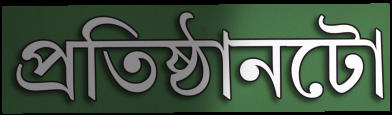
প্ৰতিষ্ঠানটো